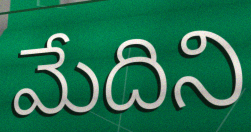
మేదిని